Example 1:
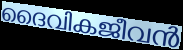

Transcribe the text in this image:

ദൈവികജീവൻ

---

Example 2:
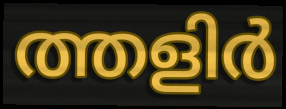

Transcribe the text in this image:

ത്തളിർ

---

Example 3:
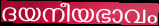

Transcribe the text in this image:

ദയനീയഭാവം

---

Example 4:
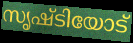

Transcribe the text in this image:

സൃഷ്ടിയോട്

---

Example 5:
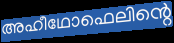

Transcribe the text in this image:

അഹീഥോഫെലിന്റെ